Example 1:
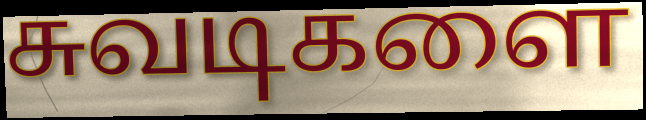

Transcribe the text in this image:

சுவடிகளை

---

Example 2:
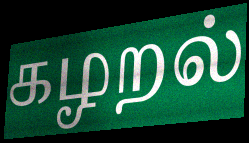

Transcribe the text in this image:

கழறல்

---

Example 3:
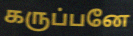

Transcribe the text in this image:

கருப்பனே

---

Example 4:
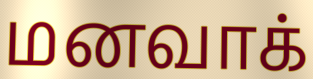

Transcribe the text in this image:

மனவாக்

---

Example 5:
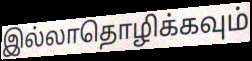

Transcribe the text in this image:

இல்லாதொழிக்கவும்